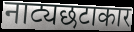
नाट्यछटाकार